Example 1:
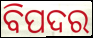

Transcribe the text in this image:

ବିପଦର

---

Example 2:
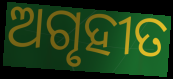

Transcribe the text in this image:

ଅଗୃହୀତ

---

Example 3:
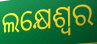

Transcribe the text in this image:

ଲକ୍ଷେଶ୍ଵର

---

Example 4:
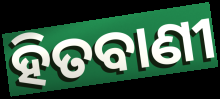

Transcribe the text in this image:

ହିତବାଣୀ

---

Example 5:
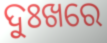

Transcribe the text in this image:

ଦୁଃଖରେ